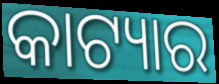
କାଟ୍ୟାର